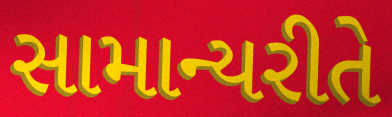
સામાન્યરીતે